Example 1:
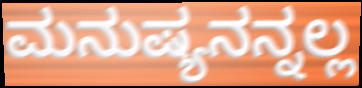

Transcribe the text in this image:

ಮನುಷ್ಯನನ್ನಲ್ಲ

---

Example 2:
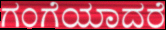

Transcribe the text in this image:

ಗಂಗೆಯಾದರೆ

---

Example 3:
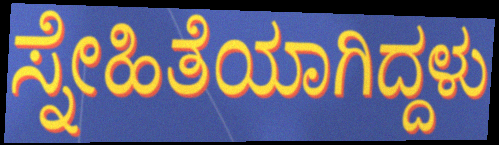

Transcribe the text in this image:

ಸ್ನೇಹಿತೆಯಾಗಿದ್ದಳು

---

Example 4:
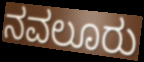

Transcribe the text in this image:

ನವಲೂರು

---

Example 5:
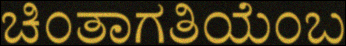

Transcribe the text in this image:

ಚಿಂತಾಗತಿಯೆಂಬ